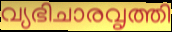
വ്യഭിചാരവൃത്തി